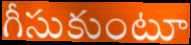
గీసుకుంటూ